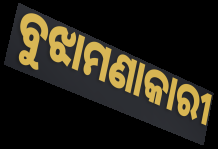
ବୁଝାମଣାକାରୀ